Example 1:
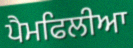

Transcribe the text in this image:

ਪੈਮਫਿਲੀਆ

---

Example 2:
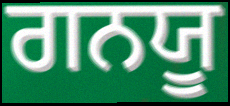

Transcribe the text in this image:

ਗਨਯੂ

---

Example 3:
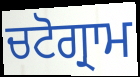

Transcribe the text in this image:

ਚਟੋਗ੍ਰਾਮ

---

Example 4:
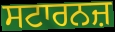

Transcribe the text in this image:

ਸਟਾਰਨਜ਼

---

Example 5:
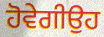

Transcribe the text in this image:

ਹੋਵੇਗੀਉਹ